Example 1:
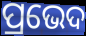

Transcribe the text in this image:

ପ୍ରଭେଦ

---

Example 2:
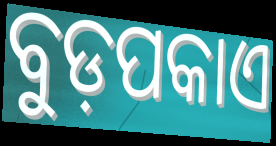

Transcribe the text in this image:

ବୁଡ଼ପକାଏ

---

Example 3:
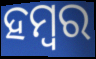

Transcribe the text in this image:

ହମ୍ବର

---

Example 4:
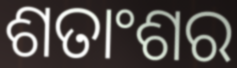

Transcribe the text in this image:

ଶତାଂଶର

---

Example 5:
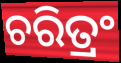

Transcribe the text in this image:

ଚରିତ୍ରଂ